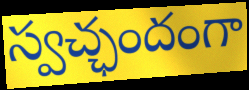
స్వచ్ఛందంగా